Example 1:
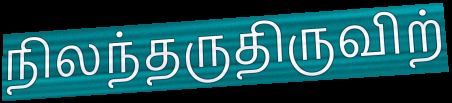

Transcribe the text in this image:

நிலந்தருதிருவிற்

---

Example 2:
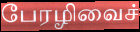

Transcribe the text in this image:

பேரழிவைச்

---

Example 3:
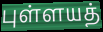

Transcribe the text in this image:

புள்ளயத்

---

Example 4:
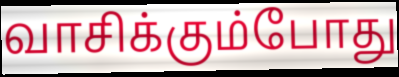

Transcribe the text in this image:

வாசிக்கும்போது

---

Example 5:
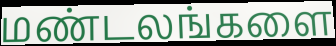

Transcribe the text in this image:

மண்டலங்களை